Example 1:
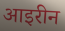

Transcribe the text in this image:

आइरीन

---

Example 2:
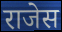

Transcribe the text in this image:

राजेस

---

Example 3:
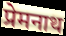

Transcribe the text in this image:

प्रेमनाथ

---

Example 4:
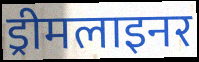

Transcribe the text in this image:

ड्रीमलाइनर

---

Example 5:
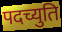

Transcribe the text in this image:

पदच्युति